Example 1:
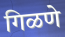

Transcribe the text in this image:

गिळणे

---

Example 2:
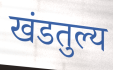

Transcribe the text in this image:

खंडतुल्य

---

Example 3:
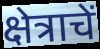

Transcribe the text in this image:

क्षेत्राचें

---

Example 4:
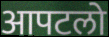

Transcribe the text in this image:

आपटलो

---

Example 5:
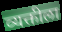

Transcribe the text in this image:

व्यक्तीला